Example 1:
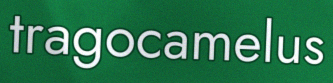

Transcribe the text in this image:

tragocamelus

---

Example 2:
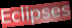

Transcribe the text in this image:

Eclipses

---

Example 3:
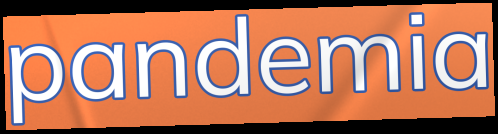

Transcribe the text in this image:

pandemia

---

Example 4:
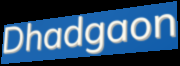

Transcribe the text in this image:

Dhadgaon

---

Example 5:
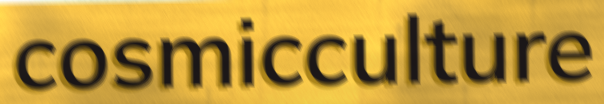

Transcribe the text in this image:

cosmicculture